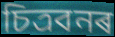
চিত্ৰবনৰ